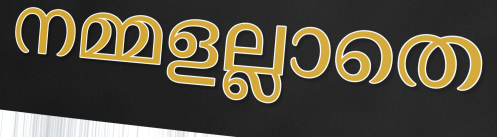
നമ്മളല്ലാതെ